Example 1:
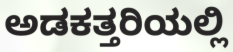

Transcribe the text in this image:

ಅಡಕತ್ತರಿಯಲ್ಲಿ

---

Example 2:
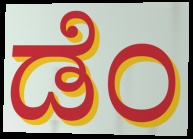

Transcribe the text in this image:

ಡೆಂ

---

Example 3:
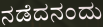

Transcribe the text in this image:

ನಡೆದನಂದು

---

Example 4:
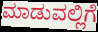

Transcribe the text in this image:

ಮಾಡುವಲ್ಲಿಗೆ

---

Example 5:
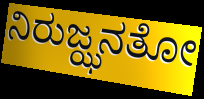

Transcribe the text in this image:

ನಿರುಜ್ಝನತೋ